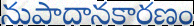
నుపాదానకారణం